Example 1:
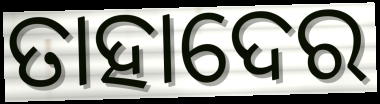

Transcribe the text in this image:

ତାହାଦେର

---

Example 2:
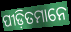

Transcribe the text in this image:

ପୀଡ଼ିତମାନେ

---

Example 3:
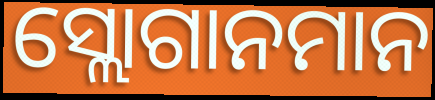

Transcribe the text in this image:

ସ୍ଲୋଗାନମାନ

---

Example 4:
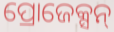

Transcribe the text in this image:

ପ୍ରୋଜେକ୍ସନ୍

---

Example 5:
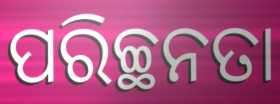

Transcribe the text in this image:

ପରିଚ୍ଛନତା